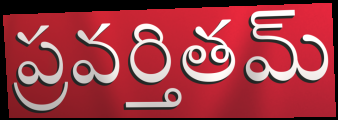
ప్రవర్తితమ్